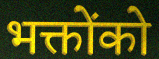
भक्तोंको